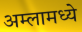
अम्लामध्ये